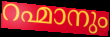
റഹ്മാനും